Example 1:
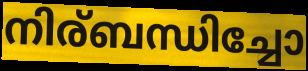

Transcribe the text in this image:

നിര്ബന്ധിച്ചോ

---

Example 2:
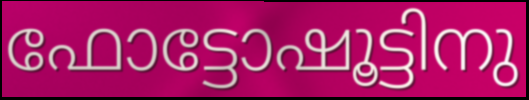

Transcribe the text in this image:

ഫോട്ടോഷൂട്ടിനു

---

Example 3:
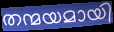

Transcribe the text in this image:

തന്മയമായി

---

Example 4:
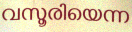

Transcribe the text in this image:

വസൂരിയെന്ന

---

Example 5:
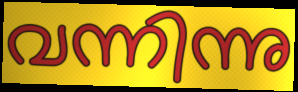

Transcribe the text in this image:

വന്നിന്നു